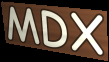
MDX